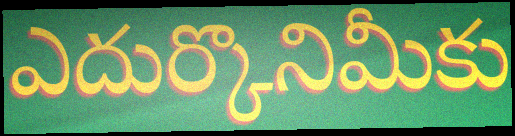
ఎదుర్కొనిమీకు